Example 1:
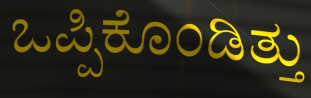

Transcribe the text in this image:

ಒಪ್ಪಿಕೊಂಡಿತ್ತು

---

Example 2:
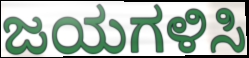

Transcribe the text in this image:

ಜಯಗಳಿಸಿ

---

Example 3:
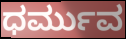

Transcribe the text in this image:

ಧರ್ಮುವ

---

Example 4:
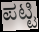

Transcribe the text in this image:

ಪಟ್ಟಿ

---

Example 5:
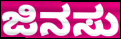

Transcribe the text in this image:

ಜಿನಸು